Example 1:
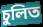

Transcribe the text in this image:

চুলিত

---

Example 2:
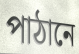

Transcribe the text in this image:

পাঠানে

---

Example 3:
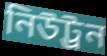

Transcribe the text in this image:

নিউট্ৰন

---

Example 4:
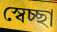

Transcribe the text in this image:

স্বেচ্ছা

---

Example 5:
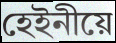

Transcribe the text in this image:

হেইনীয়ে